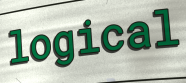
logical